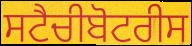
ਸਟੈਚੀਬੋਟਰੀਸ